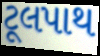
ટૂલપાથ